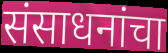
संसाधनांचा